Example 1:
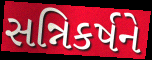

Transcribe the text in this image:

સન્નિકર્ષને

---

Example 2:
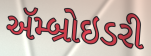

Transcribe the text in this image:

ઍમ્બ્રોઇડરી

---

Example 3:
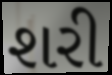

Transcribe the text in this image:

શરી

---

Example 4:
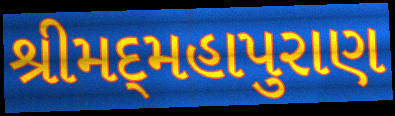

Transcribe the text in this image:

શ્રીમદ્‌મહાપુરાણ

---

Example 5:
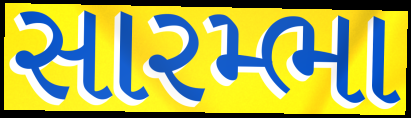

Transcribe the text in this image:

સારમ્ભા